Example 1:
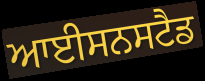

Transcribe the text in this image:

ਆਈਸਨਸਟੈਡ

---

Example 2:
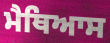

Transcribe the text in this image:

ਮੈਥਿਆਸ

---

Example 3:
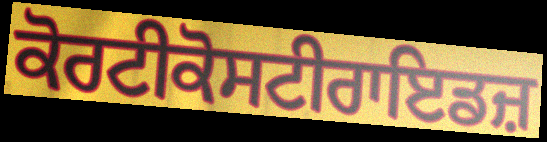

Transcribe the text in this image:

ਕੋਰਟੀਕੋਸਟੀਰਾਇਡਜ਼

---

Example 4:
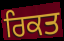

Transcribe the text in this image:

ਰਿਕਤ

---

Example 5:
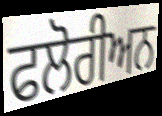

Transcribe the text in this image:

ਫਲੋਰੀਅਨ